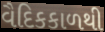
વૈદિકકાળથી